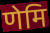
णेमि